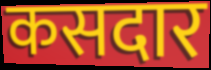
कसदार